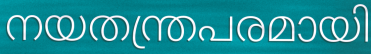
നയതന്ത്രപരമായി